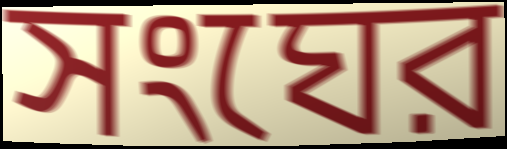
সংঘের